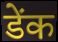
डेंक